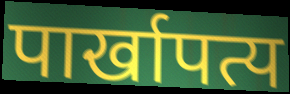
पार्खापत्य